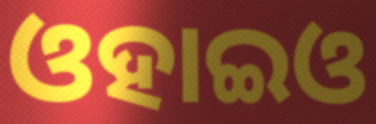
ଓହାଇଓ